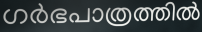
ഗർഭപാത്രത്തിൽ